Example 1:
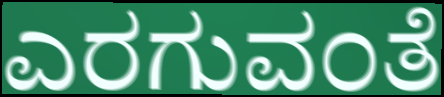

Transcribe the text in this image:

ಎರಗುವಂತೆ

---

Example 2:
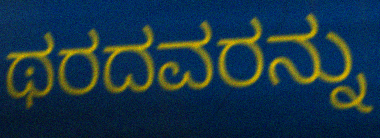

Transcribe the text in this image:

ಥರದವರನ್ನು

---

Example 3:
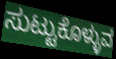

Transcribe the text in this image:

ಸುಟ್ಟುಕೊಳ್ಳುವ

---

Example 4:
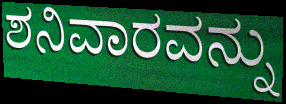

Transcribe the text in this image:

ಶನಿವಾರವನ್ನು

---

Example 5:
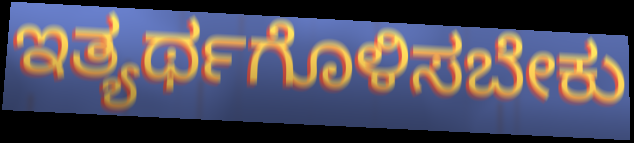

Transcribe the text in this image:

ಇತ್ಯರ್ಥಗೊಳಿಸಬೇಕು